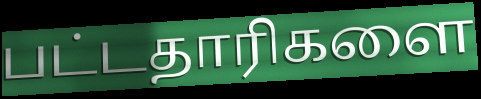
பட்டதாரிகளை